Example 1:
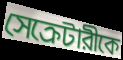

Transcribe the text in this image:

সেক্রেটারীকে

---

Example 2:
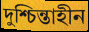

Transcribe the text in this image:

দুশ্চিন্তাহীন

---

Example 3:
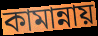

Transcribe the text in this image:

কামান্নায়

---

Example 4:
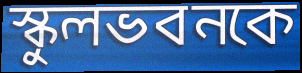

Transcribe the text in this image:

স্কুলভবনকে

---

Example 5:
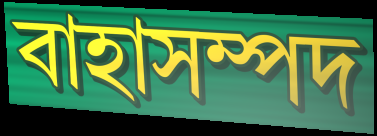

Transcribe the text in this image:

বাহাসম্পদ